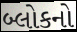
બ્લોકનો